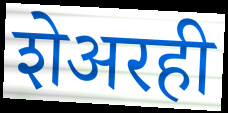
शेअरही